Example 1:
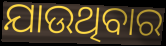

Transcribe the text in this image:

ଯାଉଥିବାର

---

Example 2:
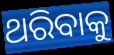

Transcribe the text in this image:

ଥରିବାକୁ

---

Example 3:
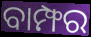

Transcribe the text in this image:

ବାମ୍ଫର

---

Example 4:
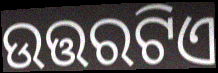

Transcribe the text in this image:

ଉତ୍ତରଟିଏ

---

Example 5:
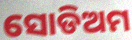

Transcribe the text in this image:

ସୋଡିଅମ